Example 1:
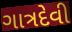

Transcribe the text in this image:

ગાત્રદેવી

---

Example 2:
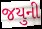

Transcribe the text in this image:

જયુની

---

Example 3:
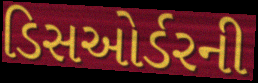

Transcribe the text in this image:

ડિસઓર્ડરની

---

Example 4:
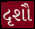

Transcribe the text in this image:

દૃશૌ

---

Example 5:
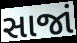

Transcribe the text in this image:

સાજાં